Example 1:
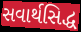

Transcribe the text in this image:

સવાર્થસિદ્ધ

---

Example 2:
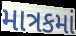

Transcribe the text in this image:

માત્રકમાં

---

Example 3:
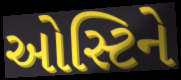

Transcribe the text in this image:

ઓસ્ટિને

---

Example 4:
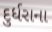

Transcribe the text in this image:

દુર્ધરાના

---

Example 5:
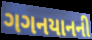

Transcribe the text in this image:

ગગનયાનની